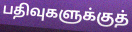
பதிவுகளுக்குத்